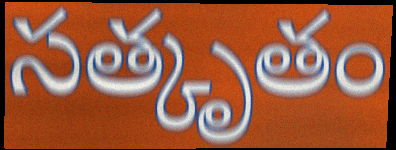
సత్కృతం